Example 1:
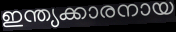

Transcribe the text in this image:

ഇന്ത്യക്കാരനായ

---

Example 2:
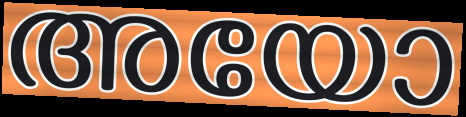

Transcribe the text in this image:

അയോ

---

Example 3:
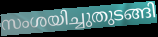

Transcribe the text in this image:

സംശയിച്ചുതുടങ്ങി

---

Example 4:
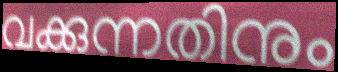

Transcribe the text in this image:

വക്കുന്നതിനും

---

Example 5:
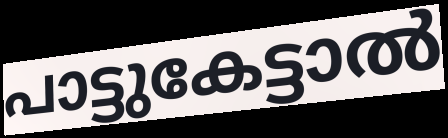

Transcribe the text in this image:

പാട്ടുകേട്ടാൽ